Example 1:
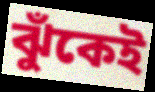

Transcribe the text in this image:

ঝুঁকেই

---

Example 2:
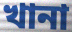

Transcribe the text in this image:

খানা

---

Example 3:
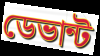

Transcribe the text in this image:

ডেভান্ট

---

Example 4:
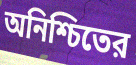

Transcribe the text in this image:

অনিশ্চিতের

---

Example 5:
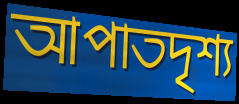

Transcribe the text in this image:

আপাতদৃশ্য